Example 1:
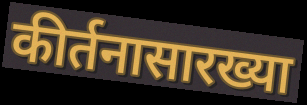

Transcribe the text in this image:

कीर्तनासारख्या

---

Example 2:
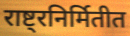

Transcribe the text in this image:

राष्ट्रनिर्मितीत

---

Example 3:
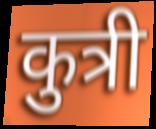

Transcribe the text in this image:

कुत्री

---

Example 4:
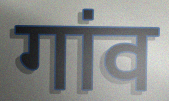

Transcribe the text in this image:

गांव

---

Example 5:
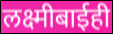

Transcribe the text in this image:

लक्ष्मीबाईही